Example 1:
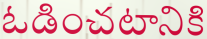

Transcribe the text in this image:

ఓడించటానికి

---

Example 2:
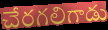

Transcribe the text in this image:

చేరగలిగాడు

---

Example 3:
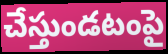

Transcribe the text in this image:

చేస్తుండటంపై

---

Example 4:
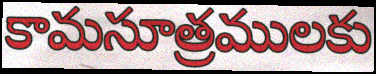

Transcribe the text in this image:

కామసూత్రములకు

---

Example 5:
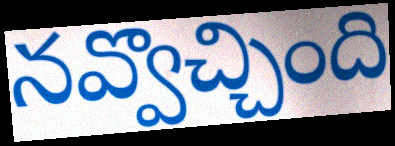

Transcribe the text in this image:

నవ్వొచ్చింది